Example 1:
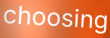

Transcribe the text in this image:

choosing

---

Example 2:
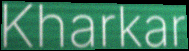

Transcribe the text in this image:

Kharkar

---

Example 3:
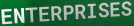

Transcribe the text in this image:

ENTERPRISES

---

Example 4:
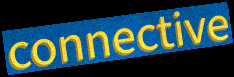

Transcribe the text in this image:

connective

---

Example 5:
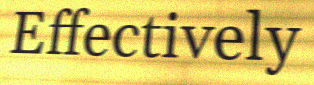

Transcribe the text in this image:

Effectively